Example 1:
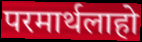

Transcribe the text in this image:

परमार्थलाहो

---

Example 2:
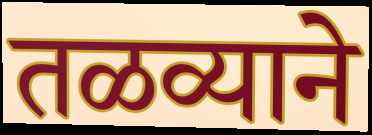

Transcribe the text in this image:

तळव्याने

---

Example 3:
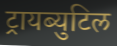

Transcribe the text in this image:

ट्रायब्युटिल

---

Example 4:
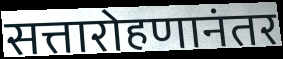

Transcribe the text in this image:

सत्तारोहणानंतर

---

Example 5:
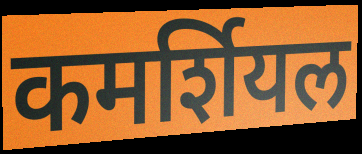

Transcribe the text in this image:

कमर्शियल